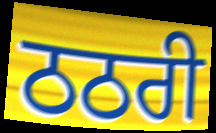
ਠਠਰੀ